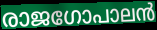
രാജഗോപാലൻ